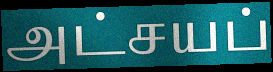
அட்சயப்